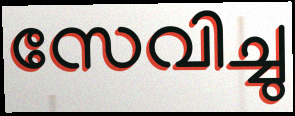
സേവിച്ചു